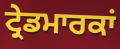
ਟ੍ਰੇਡਮਾਰਕਾਂ